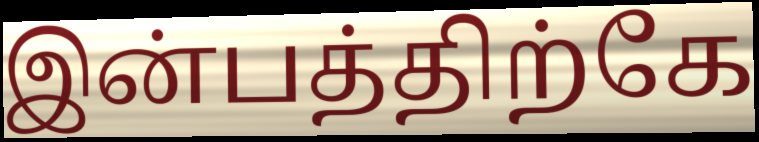
இன்பத்திற்கே